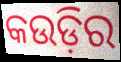
କଉଡ଼ିର